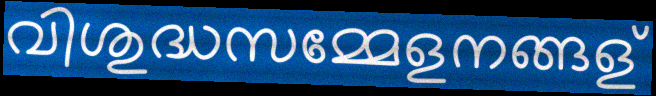
വിശുദ്ധസമ്മേളനങ്ങള്